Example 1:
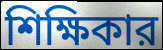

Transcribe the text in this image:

শিক্ষিকার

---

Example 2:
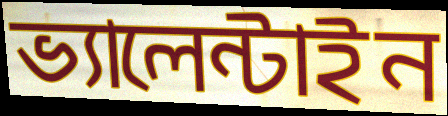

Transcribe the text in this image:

ভ্যালেন্টাইন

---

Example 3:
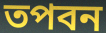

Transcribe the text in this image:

তপবন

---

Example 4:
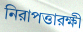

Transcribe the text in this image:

নিরাপত্তারক্ষী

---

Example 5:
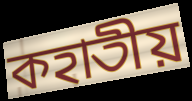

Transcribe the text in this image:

কহাতীয়